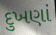
દુખણાં